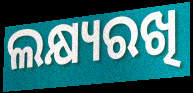
ଲକ୍ଷ୍ୟରଖି